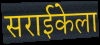
सराईकेला